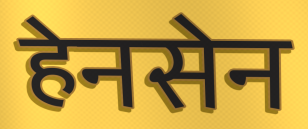
हेनसेन